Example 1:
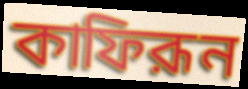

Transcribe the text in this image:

কাফিরূন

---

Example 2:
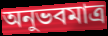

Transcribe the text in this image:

অনুভবমাত্র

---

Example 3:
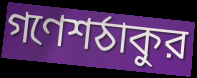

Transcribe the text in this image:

গণেশঠাকুর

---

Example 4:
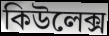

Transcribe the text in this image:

কিউলেক্স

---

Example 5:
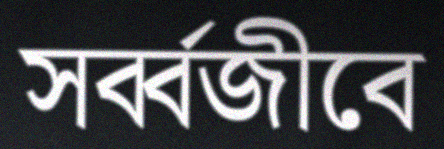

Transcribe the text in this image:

সর্ব্বজীবে